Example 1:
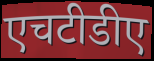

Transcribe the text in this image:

एचटीडीए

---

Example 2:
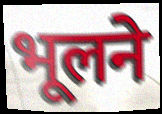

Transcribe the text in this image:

भूलने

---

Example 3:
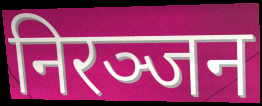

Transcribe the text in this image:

निरञ्जन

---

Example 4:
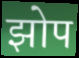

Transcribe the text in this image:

झोप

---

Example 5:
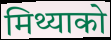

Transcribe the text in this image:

मिथ्याको